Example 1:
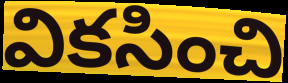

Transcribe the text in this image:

వికసించి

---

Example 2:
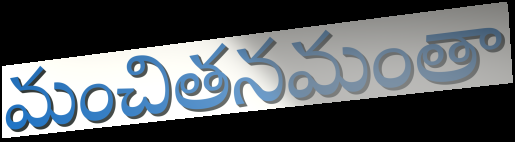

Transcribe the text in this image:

మంచితనమంతా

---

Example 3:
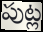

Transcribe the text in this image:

పుట్ల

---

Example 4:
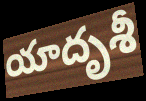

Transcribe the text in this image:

యాదృశీ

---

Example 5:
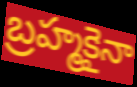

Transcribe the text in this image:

బ్రహ్మకైనా